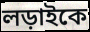
লড়াইকে